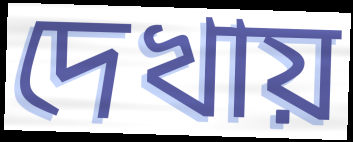
দেখায়